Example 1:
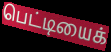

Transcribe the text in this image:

பெட்டியைக்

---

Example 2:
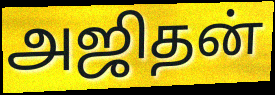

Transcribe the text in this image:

அஜிதன்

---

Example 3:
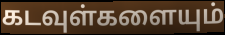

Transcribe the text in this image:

கடவுள்களையும்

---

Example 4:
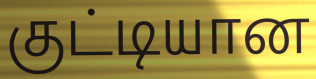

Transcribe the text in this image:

குட்டியான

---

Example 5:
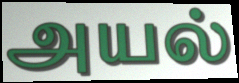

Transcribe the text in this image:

அயல்